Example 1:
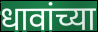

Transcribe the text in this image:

धावांच्या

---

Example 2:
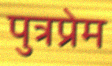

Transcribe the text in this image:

पुत्रप्रेम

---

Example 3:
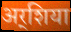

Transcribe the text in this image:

अर्शिया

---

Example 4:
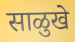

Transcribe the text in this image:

साळुखे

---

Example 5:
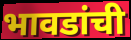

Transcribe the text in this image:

भावडांची